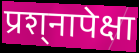
प्रश्नापेक्षा